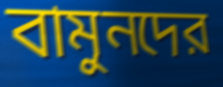
বামুনদের